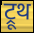
ट्रूथ